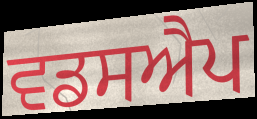
ਵਡਸਐਪ